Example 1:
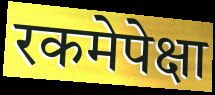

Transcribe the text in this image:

रकमेपेक्षा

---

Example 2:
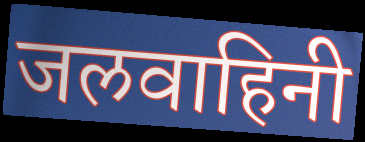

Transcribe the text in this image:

जलवाहिनी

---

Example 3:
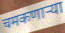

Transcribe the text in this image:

चमकणाऱ्या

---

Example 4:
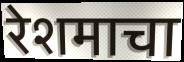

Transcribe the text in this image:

रेशमाचा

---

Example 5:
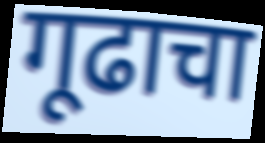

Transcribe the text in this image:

गूढाचा